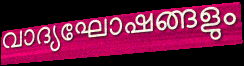
വാദ്യഘോഷങ്ങളും